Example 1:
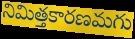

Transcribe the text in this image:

నిమిత్తకారణమగు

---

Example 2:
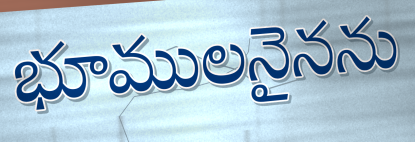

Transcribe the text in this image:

భూములనైనను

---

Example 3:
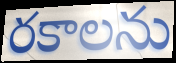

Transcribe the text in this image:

రకాలను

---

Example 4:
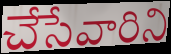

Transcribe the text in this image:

చేసేవారిని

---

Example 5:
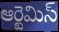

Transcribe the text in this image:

ఆర్టెమిస్